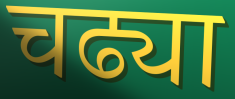
चढ्या